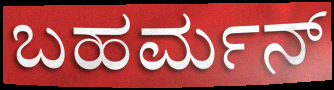
ಬಹರ್ಮನ್